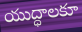
యుద్ధాలకూ